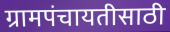
ग्रामपंचायतीसाठी